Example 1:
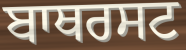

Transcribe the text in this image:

ਬਾਥਰਸਟ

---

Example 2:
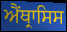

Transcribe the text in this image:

ਐਂਥ੍ਰਾਸਿਸ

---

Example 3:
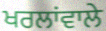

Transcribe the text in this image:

ਖਰਲਾਂਵਾਲੇ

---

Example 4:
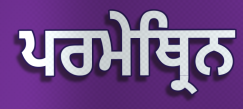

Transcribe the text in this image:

ਪਰਮੇਥ੍ਰਿਨ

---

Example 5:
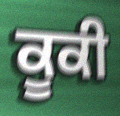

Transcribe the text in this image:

ਕੂਕੀ